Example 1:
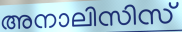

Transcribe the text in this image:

അനാലിസിസ്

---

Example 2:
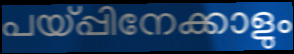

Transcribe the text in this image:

പയ്പ്പിനേക്കാളും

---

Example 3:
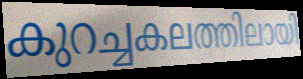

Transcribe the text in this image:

കുറച്ചകലത്തിലായി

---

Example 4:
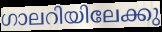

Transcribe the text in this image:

ഗാലറിയിലേക്കു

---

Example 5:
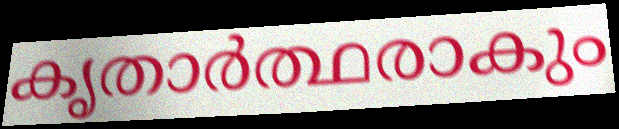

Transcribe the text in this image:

കൃതാർത്ഥരാകും